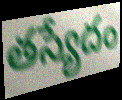
తస్యేదం